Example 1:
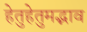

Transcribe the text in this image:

हेतुहेतुमद्भाव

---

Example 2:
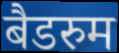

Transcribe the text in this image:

बैडरुम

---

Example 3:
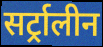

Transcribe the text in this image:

सर्ट्रालीन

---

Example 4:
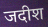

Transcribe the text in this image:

जदीश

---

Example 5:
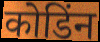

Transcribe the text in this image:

कोडिंन